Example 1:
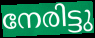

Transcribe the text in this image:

നേരിട്ടു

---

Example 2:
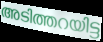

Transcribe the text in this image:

അടിത്തറയിട്ട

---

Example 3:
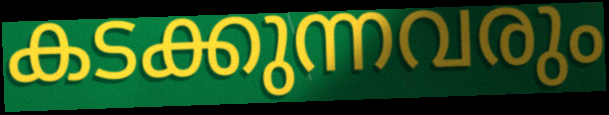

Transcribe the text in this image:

കടക്കുന്നവരും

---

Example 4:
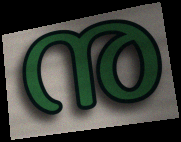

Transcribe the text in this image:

നു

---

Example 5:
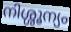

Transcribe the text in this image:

നിശ്ശൂന്യം